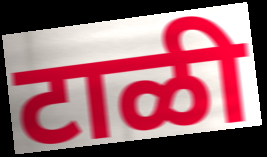
टाळी